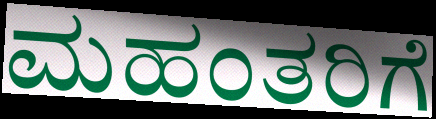
ಮಹಂತರಿಗೆ